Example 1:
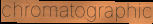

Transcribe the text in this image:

chromatographic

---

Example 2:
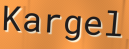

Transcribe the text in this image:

Kargel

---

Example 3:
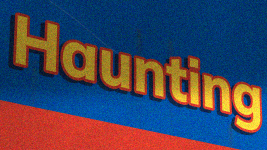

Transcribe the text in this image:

Haunting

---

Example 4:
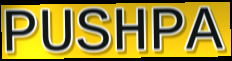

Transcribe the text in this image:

PUSHPA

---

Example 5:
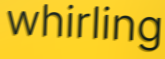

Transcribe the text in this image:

whirling